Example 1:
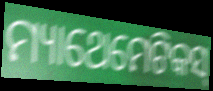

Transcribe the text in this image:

ମ୍ୟାଥେମେଟିକସ୍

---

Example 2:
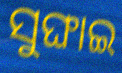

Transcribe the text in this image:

ସୁଙ୍ଘାଇ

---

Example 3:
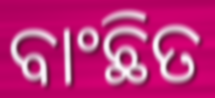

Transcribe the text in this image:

ବାଂଛିତ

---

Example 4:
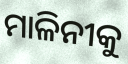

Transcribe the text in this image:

ମାଳିନୀକୁ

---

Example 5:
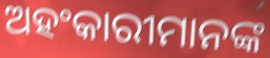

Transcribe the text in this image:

ଅହଂକାରୀମାନଙ୍କ